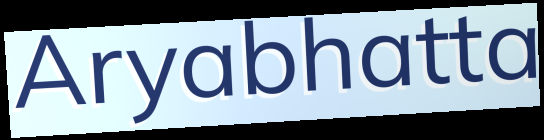
Aryabhatta